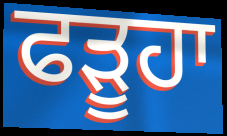
ਫੜੂਹਾ